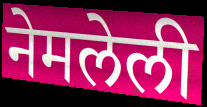
नेमलेली